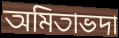
অমিতাভদা